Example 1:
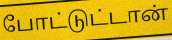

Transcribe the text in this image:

போட்டுட்டான்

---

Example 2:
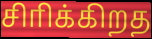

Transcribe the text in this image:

சிரிக்கிறத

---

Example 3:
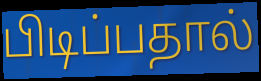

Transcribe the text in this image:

பிடிப்பதால்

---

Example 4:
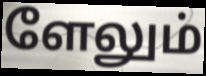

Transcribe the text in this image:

ளேலும்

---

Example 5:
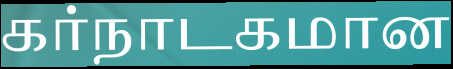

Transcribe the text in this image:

கர்நாடகமான